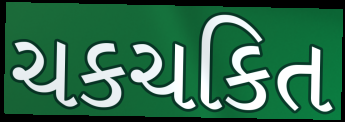
ચકચકિત